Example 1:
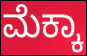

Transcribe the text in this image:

ಮೆಕ್ಕಾ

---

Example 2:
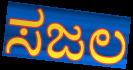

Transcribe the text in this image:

ಸಜಲ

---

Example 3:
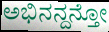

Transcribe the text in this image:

ಅಭಿನನ್ದನ್ತೋ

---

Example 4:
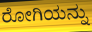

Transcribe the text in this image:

ರೋಗಿಯನ್ನು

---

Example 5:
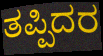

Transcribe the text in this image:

ತಪ್ಪಿದರ